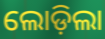
ଲୋଡ଼ିଲା